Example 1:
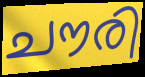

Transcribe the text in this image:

ചൗരി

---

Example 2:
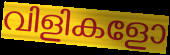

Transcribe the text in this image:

വിളികളോ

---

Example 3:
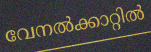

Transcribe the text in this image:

വേനൽക്കാറ്റിൽ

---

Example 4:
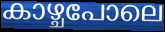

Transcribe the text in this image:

കാഴ്ചപോലെ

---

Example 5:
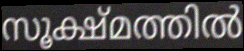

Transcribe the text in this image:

സൂക്ഷ്മത്തിൽ